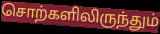
சொற்களிலிருந்தும்